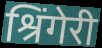
श्रिंगेरी